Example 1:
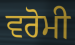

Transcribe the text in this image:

ਵਰੋਮੀ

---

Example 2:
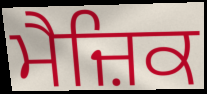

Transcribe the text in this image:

ਮੈਜ਼ਿਕ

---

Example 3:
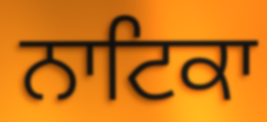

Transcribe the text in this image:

ਨਾਟਿਕਾ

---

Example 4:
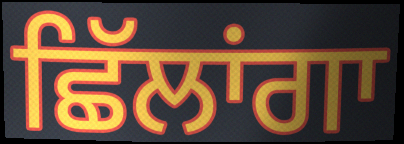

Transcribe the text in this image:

ਛਿੱਲਾਂਗਾ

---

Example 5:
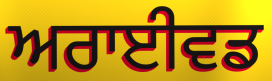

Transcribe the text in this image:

ਅਰਾਈਵਡ